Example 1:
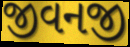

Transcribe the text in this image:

જીવનજી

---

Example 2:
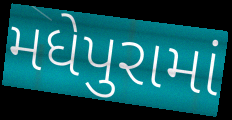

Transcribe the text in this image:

મધેપુરામાં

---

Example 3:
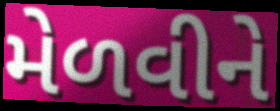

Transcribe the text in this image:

મેળવીને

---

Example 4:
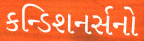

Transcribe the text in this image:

કન્ડિશનર્સનો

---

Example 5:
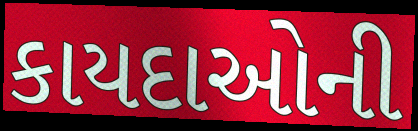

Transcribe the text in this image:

કાયદાઓની